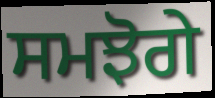
ਸਮਝੋਗੇ